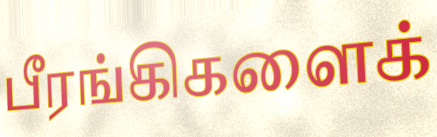
பீரங்கிகளைக்